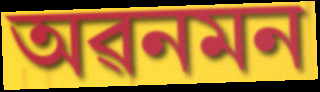
অৱনমন